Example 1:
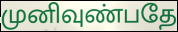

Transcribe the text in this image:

முனிவுண்பதே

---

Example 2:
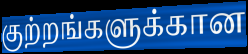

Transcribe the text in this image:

குற்றங்களுக்கான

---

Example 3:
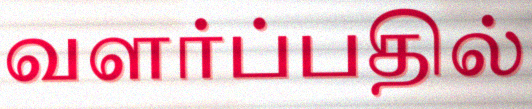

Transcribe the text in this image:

வளர்ப்பதில்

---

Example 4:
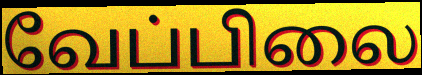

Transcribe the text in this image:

வேப்பிலை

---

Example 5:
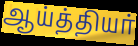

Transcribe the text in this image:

ஆய்த்தியர்